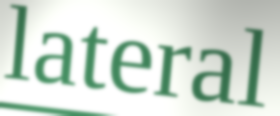
lateral